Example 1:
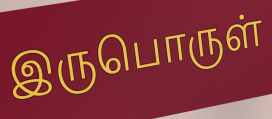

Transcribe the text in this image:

இருபொருள்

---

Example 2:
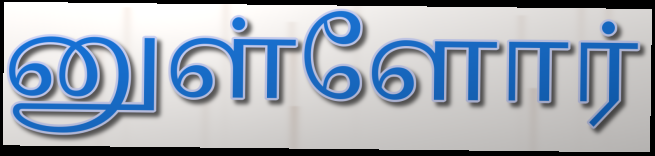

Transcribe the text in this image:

னுள்ளோர்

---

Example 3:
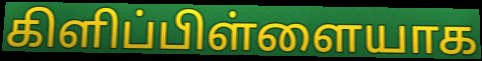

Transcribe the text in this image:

கிளிப்பிள்ளையாக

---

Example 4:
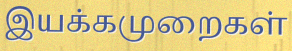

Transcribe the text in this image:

இயக்கமுறைகள்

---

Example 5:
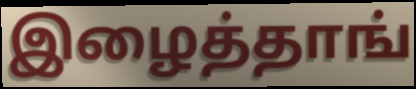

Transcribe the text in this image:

இழைத்தாங்